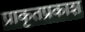
प्राकृतप्रकाश